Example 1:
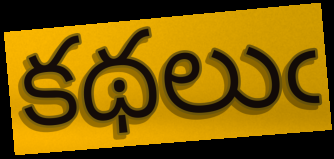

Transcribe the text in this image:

కథలుఁ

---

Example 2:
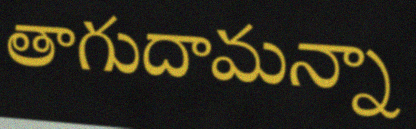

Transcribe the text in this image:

తాగుదామన్నా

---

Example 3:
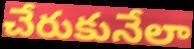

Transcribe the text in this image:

చేరుకునేలా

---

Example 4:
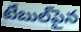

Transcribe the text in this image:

టేబుల్‌పైన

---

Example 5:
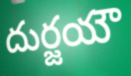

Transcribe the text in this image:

దుర్జయౌ